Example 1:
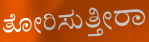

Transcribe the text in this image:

ತೋರಿಸುತ್ತೀರಾ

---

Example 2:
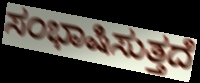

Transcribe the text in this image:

ಸಂಭಾಷಿಸುತ್ತದೆ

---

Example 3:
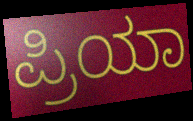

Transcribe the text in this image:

ಪ್ರಿಯಾ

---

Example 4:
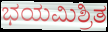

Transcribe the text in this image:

ಭಯಮಿಶ್ರಿತ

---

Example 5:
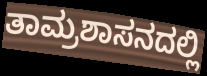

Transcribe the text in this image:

ತಾಮ್ರಶಾಸನದಲ್ಲಿ